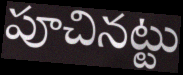
పూచినట్టు